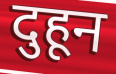
दुहून